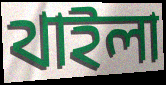
থাইলা